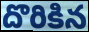
దొరికిన